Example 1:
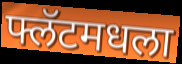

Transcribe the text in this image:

फ्लॅटमधला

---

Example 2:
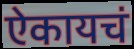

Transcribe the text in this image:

ऐकायचं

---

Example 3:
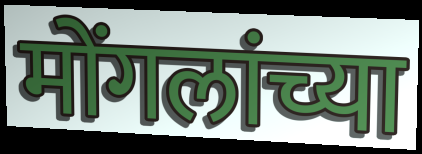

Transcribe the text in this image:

मोंगलांच्या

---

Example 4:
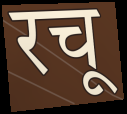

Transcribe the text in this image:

रचू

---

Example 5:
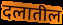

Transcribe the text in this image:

दलातील